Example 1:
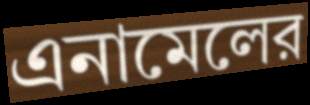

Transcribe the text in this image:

এনামেলের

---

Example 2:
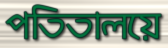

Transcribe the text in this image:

পতিতালয়ে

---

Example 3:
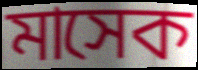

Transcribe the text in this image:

মাসেক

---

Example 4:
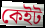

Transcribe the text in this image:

কেইট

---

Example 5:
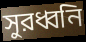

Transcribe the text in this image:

সুরধ্বনি